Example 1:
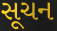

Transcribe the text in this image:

સૂચન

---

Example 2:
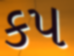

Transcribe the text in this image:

કપ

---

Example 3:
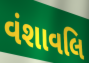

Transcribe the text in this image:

વંશાવલિ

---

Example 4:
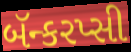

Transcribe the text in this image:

બૅન્કરપ્સી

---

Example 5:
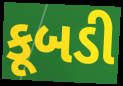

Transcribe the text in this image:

કૂબડી